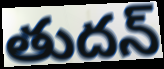
తుదన్